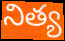
నిత్య